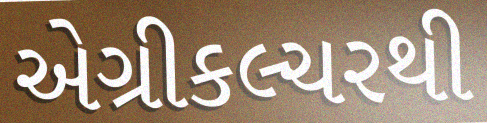
એગ્રીકલ્ચરથી